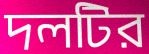
দলটির